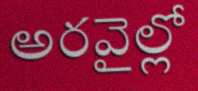
అరవైల్లో